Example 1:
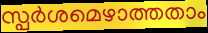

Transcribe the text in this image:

സ്പർശമെഴാത്തതാം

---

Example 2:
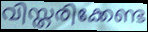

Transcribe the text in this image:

വിസ്തരിക്കേണ്ട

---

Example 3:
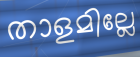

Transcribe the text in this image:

താളമില്ലേ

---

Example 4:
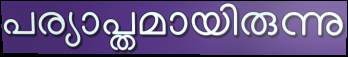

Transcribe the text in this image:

പര്യാപ്തമായിരുന്നു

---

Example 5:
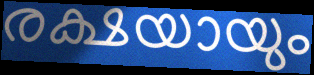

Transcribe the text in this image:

രക്ഷയായും